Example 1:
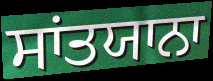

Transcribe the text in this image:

ਸਾਂਤਯਾਨਾ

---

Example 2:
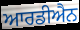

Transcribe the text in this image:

ਆਰਡੀਐਨ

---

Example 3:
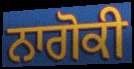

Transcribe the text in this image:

ਨਾਗੋਕੀ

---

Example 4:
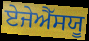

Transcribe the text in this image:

ਏਜੇਐੱਸਯੂ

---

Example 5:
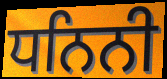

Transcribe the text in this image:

ਧਨਿਨੀ